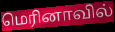
மெரினாவில்